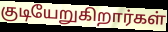
குடியேறுகிறார்கள்